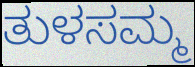
ತುಳಸಮ್ಮ